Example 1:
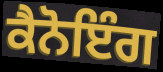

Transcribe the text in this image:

ਕੈਨੋਇੰਗ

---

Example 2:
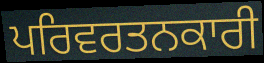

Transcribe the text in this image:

ਪਰਿਵਰਤਨਕਾਰੀ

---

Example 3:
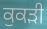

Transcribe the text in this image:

ਕੁਕੜੀ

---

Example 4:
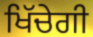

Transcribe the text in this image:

ਖਿੱਚੇਗੀ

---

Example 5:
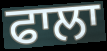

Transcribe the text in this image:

ਫਾਲਾ